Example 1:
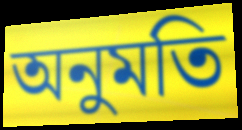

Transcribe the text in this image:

অনুমতি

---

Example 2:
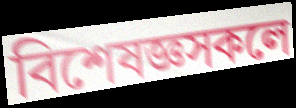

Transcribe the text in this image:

বিশেষজ্ঞসকলে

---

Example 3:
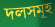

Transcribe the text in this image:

দলসমূহ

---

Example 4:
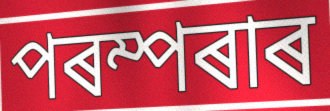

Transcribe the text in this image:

পৰম্পৰাৰ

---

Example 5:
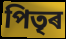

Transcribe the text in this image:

পিতৃৰ